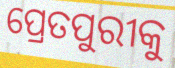
ପ୍ରେତପୁରୀକୁ